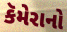
કૅમેરાનો